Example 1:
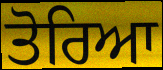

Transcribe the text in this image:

ਤੋਰਿਆ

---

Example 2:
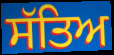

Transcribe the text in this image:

ਸੱਤਿਅ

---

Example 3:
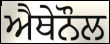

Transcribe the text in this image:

ਐਥੇਨੌਲ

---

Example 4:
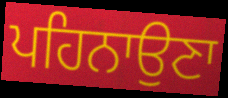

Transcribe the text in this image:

ਪਹਿਨਾਉਣਾ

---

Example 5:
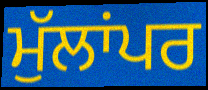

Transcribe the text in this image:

ਮੁੱਲਾਂਪਰ